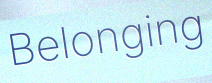
Belonging